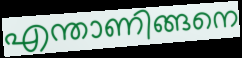
എന്താണിങ്ങനെ